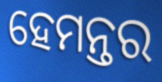
ହେମନ୍ତର